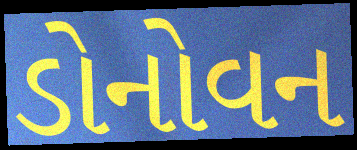
ડોનોવન